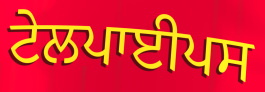
ਟੇਲਪਾਈਪਸ